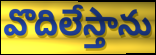
వొదిలేస్తాను